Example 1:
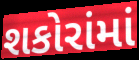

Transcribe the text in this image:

શકોરાંમાં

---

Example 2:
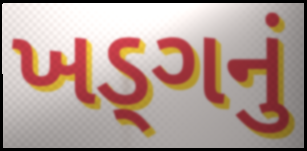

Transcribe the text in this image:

ખડ્ગનું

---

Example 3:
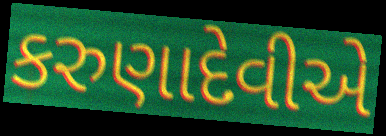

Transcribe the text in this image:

કરુણાદેવીએ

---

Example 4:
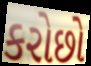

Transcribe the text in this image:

કરોછો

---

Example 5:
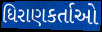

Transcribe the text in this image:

ધિરાણકર્તાઓ